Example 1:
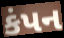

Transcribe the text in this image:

કંપન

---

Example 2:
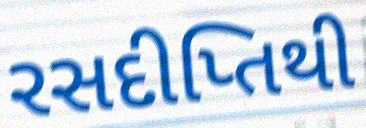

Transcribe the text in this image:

રસદીપ્તિથી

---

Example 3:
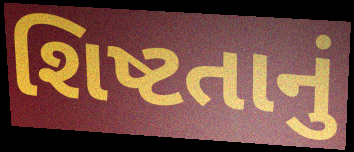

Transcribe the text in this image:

શિષ્ટતાનું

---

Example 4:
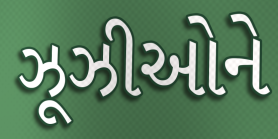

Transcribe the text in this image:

ઝૂઝીઓને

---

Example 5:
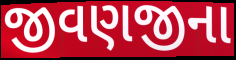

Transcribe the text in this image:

જીવણજીના